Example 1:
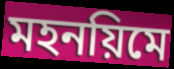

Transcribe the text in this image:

মহনয়িমে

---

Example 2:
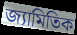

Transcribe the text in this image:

জ্যামিতিক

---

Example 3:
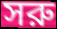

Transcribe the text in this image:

সরু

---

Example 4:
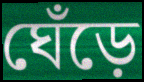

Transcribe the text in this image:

ঘেঁড়ে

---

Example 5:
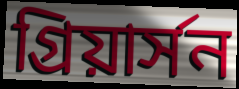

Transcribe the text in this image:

গ্রিয়ার্সন